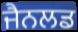
ਜੈਨਲਡ